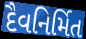
દૈવનિર્મિત